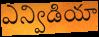
ఎన్విడియా